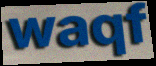
waqf